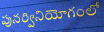
పునర్వినియోగంలో